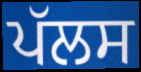
ਪੱਲਸ